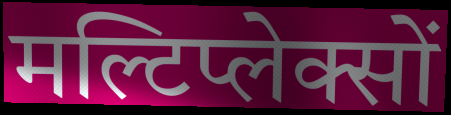
मल्टिप्लेक्सों